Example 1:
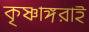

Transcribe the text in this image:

কৃষ্ণাঙ্গরাই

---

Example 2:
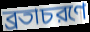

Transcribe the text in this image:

ব্রতাচরণে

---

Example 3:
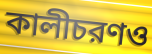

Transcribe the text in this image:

কালীচরণও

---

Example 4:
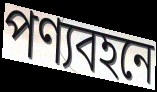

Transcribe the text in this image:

পণ্যবহনে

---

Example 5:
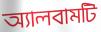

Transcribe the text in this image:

অ্যালবামটি